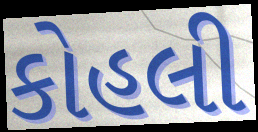
કોહલી